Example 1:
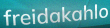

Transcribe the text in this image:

freidakahlo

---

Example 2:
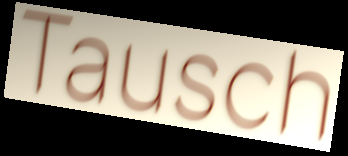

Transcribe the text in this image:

Tausch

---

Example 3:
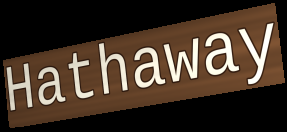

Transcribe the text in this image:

Hathaway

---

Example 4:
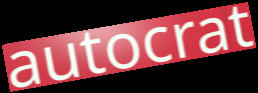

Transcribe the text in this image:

autocrat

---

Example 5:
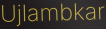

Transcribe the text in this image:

Ujlambkar